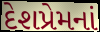
દેશપ્રેમનાં